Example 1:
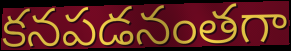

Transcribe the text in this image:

కనపడనంతగా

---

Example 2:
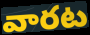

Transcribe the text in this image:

వారట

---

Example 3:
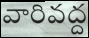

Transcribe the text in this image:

వారివద్ద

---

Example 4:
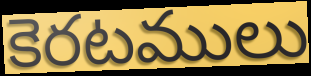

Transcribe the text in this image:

కెరటములు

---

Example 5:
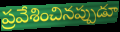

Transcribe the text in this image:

ప్రవేశించినప్పుడూ